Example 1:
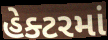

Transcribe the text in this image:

હેક્ટરમાં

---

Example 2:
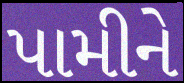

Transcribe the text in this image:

પામીને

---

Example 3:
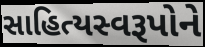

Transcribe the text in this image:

સાહિત્યસ્વરૂપોને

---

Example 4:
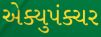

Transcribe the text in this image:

એક્યુપંક્ચર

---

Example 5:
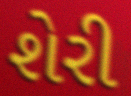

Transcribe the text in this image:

શેરી